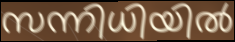
സന്നിധിയിൽ